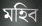
মহিব